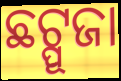
ଛଟ୍ପୂଜା